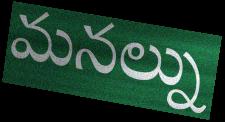
మనల్ను